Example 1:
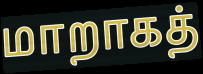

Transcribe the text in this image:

மாறாகத்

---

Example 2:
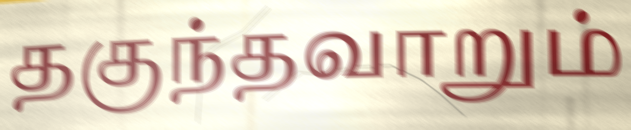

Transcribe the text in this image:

தகுந்தவாறும்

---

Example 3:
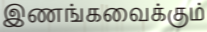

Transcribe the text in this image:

இணங்கவைக்கும்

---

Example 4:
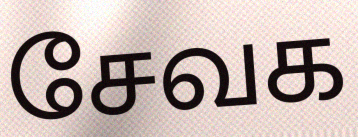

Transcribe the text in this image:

சேவக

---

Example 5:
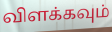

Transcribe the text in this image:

விளக்கவும்